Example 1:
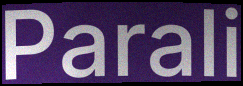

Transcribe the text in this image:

Parali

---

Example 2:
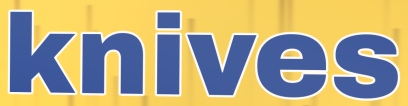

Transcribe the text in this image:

knives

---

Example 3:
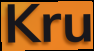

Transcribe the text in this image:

Kru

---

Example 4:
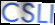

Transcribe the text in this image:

CSLI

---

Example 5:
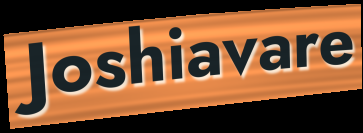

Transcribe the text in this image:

Joshiavare